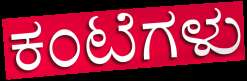
ಕಂಟೆಗಳು